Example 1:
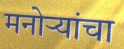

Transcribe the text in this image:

मनोर्‍यांचा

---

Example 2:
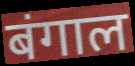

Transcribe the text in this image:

बंगाल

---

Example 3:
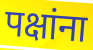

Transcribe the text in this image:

पक्षांना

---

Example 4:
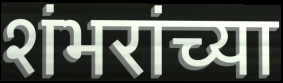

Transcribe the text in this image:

शंभरांच्या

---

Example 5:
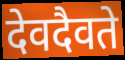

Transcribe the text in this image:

देवदैवते